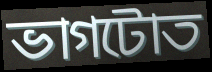
ভাগটোত